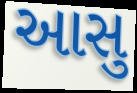
આસુ